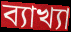
ব্যাখ্যা